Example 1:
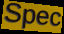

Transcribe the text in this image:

Spec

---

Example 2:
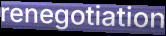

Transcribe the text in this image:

renegotiation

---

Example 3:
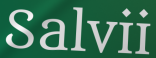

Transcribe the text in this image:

Salvii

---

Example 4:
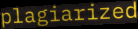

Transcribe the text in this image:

plagiarized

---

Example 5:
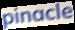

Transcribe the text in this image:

pinacle